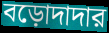
বড়োদাদার